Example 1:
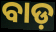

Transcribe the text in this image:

ବାଡ଼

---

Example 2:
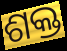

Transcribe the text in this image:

ଶକ୍ତ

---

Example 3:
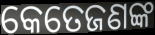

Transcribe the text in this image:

କେତେଜଣଙ୍କ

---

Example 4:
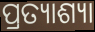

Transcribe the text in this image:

ପ୍ରତ୍ୟାଶ୍ୟା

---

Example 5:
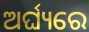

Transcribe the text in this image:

ଅର୍ଘ୍ୟରେ